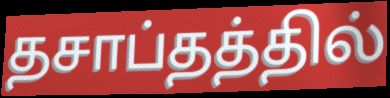
தசாப்தத்தில்